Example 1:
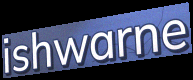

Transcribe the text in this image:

ishwarne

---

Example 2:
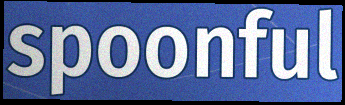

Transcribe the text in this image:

spoonful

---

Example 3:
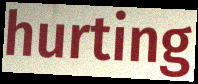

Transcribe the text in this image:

hurting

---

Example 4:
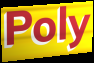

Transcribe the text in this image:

Poly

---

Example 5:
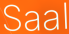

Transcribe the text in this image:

Saal